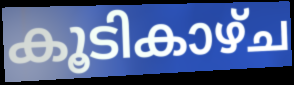
കൂടികാഴ്ച